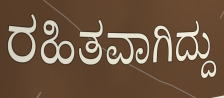
ರಹಿತವಾಗಿದ್ದು